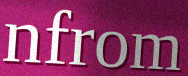
nfrom